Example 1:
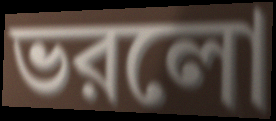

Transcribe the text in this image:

ভরলো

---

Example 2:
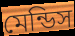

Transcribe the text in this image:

মেন্ডিস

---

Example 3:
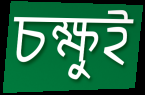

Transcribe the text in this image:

চক্ষুই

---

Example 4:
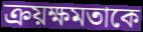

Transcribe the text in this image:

ক্রয়ক্ষমতাকে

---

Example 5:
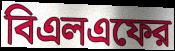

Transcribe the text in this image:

বিএলএফের